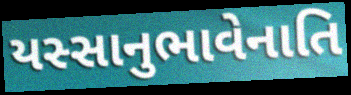
યસ્સાનુભાવેનાતિ